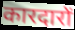
कारदारों